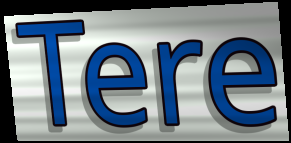
Tere